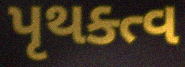
પૃથક્ત્વ